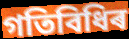
গতিবিধিৰ